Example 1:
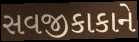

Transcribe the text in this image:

સવજીકાકાને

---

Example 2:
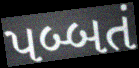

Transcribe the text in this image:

પબ્બતં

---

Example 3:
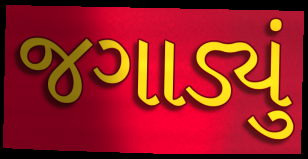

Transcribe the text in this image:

જગાડ્યું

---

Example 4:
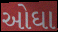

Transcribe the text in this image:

ઓઘા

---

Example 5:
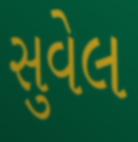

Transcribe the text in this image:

સુવેલ